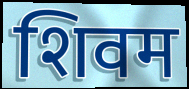
शिवम